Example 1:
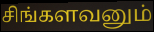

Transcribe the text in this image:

சிங்களவனும்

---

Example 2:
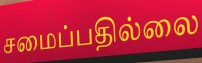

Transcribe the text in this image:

சமைப்பதில்லை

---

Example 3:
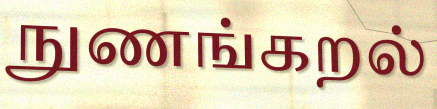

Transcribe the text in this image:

நுணங்கறல்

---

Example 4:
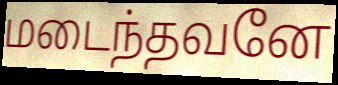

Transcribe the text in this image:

மடைந்தவனே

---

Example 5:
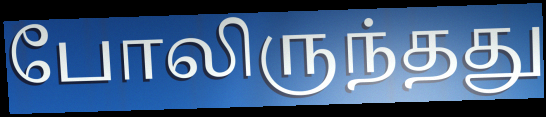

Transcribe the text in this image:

போலிருந்தது